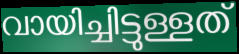
വായിച്ചിട്ടുള്ളത്